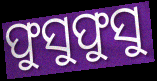
ଫୁସୁଫୁସୁ